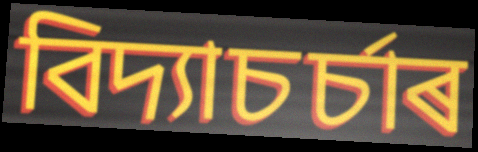
বিদ্যাচৰ্চাৰ